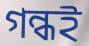
গন্ধই